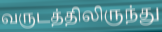
வருடத்திலிருந்து